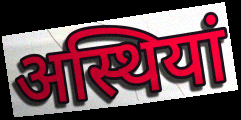
अस्थियां